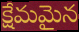
క్షేమమైన